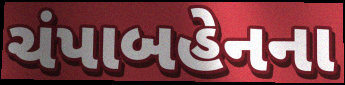
ચંપાબહેનના